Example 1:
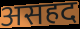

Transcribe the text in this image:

असहद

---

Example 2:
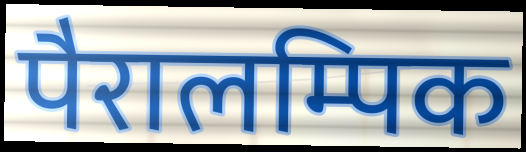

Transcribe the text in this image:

पैरालम्पिक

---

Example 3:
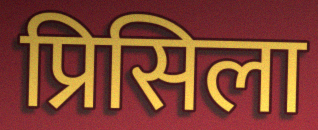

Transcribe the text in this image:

प्रिसिला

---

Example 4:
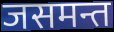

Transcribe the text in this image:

जसमन्त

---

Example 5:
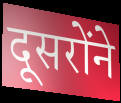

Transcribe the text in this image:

दूसरोंने